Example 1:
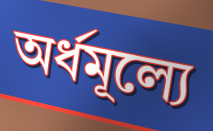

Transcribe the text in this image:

অর্ধমূল্যে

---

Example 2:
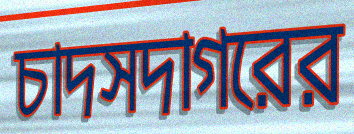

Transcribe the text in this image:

চাদসদাগরের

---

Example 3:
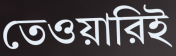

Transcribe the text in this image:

তেওয়ারিই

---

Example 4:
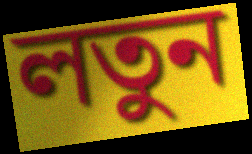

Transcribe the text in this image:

লতুন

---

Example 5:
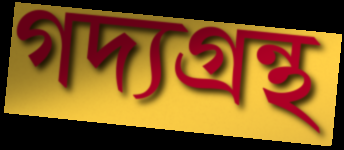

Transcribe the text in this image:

গদ্যগ্রন্থ